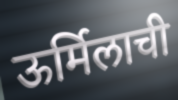
ऊर्मिलाची